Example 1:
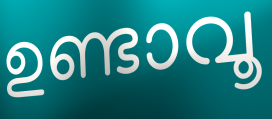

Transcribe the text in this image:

ഉണ്ടാവൂ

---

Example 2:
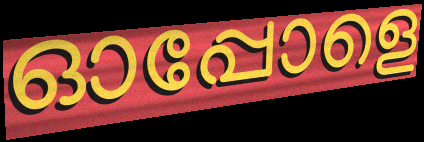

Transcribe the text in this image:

ഓപ്പോളെ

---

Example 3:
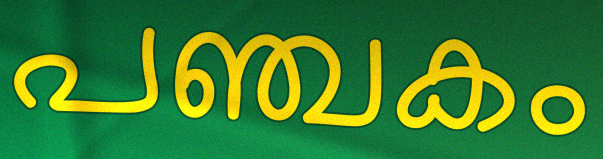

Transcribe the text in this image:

പഞ്ചകം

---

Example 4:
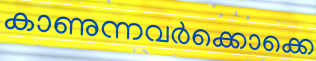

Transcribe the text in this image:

കാണുന്നവർക്കൊക്കെ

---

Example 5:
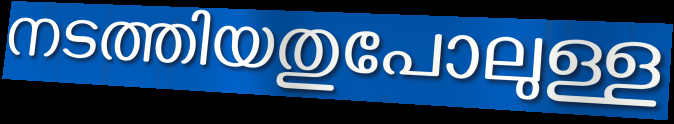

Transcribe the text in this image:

നടത്തിയതുപോലുള്ള